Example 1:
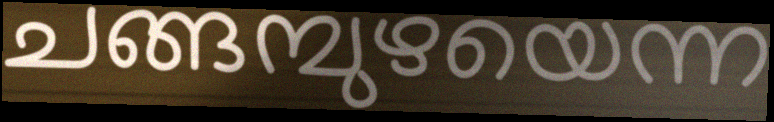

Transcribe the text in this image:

ചങ്ങമ്പുഴയെന്ന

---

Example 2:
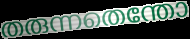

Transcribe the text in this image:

തരുന്നതെന്തോ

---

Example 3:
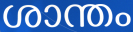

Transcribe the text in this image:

ശാന്തം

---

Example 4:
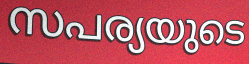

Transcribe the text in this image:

സപര്യയുടെ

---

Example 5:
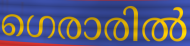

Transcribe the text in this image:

ഗെരാരിൽ